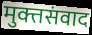
मुक्तसंवाद